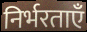
निर्भरताएँ